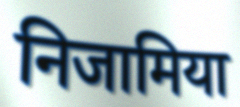
निजामिया